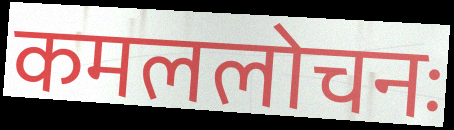
कमललोचनः